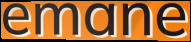
emane